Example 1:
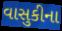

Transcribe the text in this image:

વાસુકીના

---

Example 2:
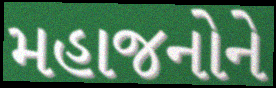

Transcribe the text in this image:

મહાજનોને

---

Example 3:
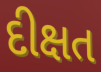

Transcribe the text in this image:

દીક્ષત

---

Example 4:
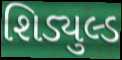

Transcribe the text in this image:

શિડ્યુલ્ડ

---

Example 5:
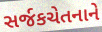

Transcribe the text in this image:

સર્જકચેતનાને